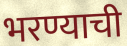
भरण्याची